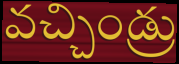
వచ్చిండ్రు